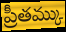
ప్రీతమ్కు